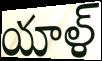
యాళ్